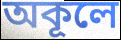
অকূলে